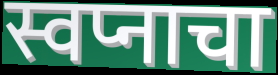
स्वप्नाचा